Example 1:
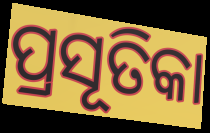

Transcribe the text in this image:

ପ୍ରସୂତିକା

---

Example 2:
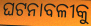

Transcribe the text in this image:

ଘଟନାବଳୀକୁ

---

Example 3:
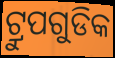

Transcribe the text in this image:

ଟ୍ରୁପଗୁଡିକ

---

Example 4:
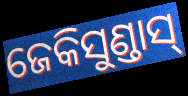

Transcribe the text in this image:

ଜେକିସୁଣ୍ଡାସ୍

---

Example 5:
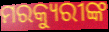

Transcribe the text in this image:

ମରକ୍ୟୁରୀଙ୍କ